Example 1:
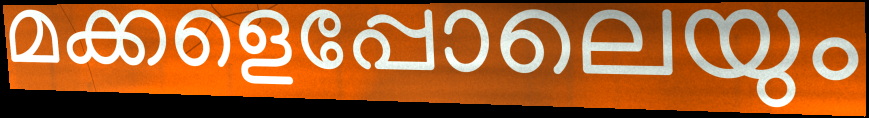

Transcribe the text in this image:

മക്കളെപ്പോലെയും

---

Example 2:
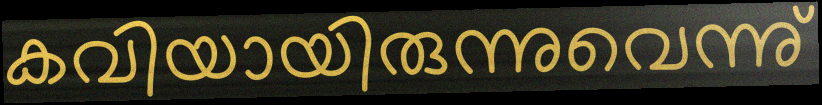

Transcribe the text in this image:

കവിയായിരുന്നുവെന്നു്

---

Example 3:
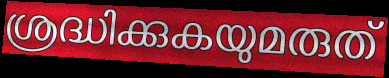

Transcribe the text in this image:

ശ്രദ്ധിക്കുകയുമരുത്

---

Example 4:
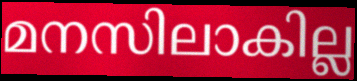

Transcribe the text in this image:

മനസിലാകില്ല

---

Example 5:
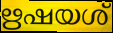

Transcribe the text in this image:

ഋഷയശ്